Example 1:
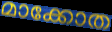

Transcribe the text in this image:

മാക്കോത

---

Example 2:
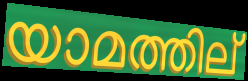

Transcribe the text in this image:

യാമത്തില്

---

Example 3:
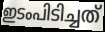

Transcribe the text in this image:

ഇടംപിടിച്ചത്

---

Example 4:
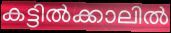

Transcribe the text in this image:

കട്ടിൽക്കാലിൽ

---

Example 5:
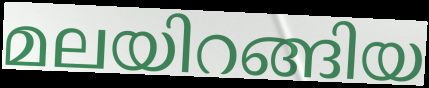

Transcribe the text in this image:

മലയിറങ്ങിയ